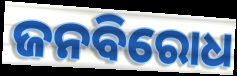
ଜନବିରୋଧ